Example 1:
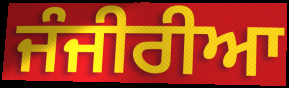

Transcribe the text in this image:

ਜੰਜੀਰੀਆ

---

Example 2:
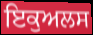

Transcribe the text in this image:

ਇਕੁਅਲਸ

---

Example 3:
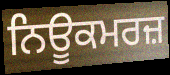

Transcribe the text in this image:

ਨਿਊਕਮਰਜ਼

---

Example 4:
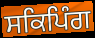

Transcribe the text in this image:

ਸਕਿਪਿੰਗ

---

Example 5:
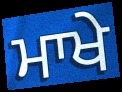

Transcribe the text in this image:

ਮਾਖੇ